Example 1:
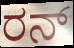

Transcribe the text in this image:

ರನ್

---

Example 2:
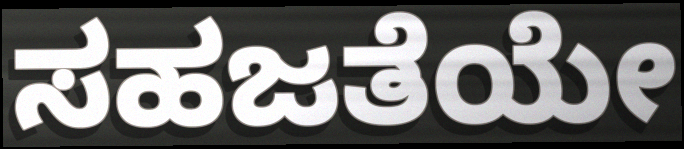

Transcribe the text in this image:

ಸಹಜತೆಯೇ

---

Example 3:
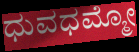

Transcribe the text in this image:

ಧುವಧಮ್ಮೋ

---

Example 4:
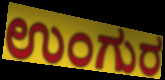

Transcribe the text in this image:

ಉಂಗುರ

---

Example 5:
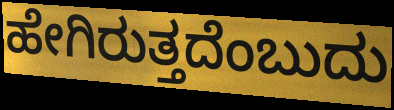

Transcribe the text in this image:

ಹೇಗಿರುತ್ತದೆಂಬುದು